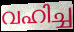
വഹിച്ച